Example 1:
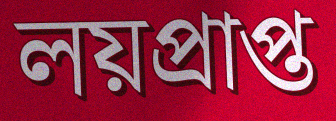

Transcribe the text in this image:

লয়প্রাপ্ত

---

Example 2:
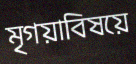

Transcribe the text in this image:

মৃগয়াবিষয়ে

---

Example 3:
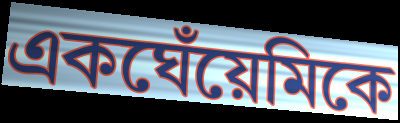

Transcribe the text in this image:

একঘেঁয়েমিকে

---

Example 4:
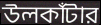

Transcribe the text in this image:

উলকাঁটার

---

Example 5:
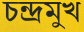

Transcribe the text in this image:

চন্দ্রমুখ